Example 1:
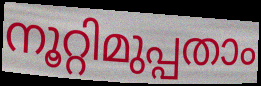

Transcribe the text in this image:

നൂറ്റിമുപ്പതാം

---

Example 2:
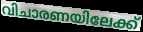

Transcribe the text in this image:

വിചാരണയിലേക്ക്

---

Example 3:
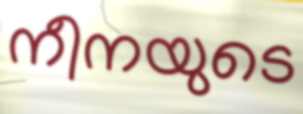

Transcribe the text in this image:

നീനയുടെ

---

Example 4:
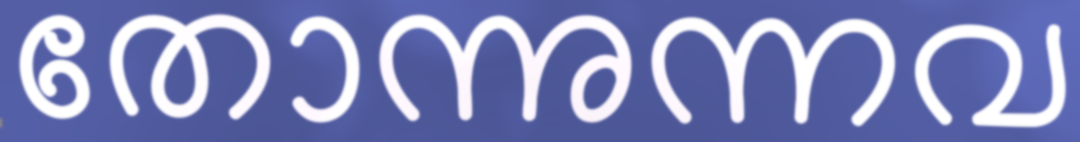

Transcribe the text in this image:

തോന്നുന്നവ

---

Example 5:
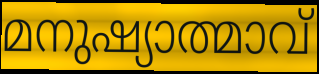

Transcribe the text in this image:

മനുഷ്യാത്മാവ്